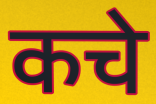
कचे